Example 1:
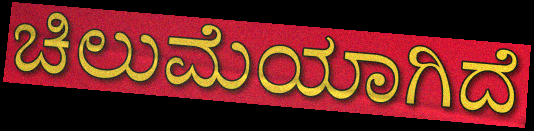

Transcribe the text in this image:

ಚಿಲುಮೆಯಾಗಿದೆ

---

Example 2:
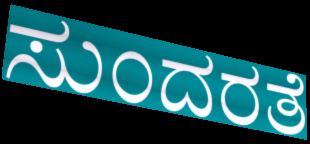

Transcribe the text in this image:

ಸುಂದರತೆ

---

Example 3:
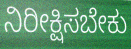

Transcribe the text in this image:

ನಿರೀಕ್ಷಿಸಬೇಕು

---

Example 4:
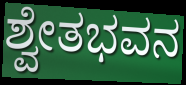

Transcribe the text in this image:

ಶ್ವೇತಭವನ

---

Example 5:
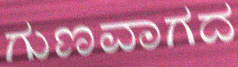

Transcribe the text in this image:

ಗುಣವಾಗದ